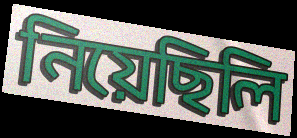
নিয়েছিলি